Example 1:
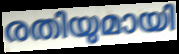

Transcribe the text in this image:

രതിയുമായി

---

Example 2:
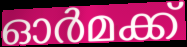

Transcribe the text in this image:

ഓർമക്ക്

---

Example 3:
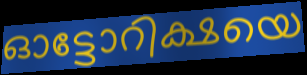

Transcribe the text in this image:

ഓട്ടോറിക്ഷയെ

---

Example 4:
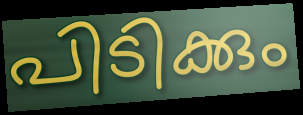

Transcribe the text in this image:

പിടിക്കും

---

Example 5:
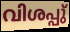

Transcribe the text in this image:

വിശപ്പു്